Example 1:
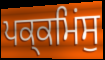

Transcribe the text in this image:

ਪਕ੍ਕਮਿਂਸੁ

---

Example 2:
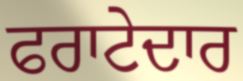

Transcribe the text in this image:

ਫਰਾਟੇਦਾਰ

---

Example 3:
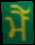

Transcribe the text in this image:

ਮੈੱ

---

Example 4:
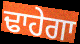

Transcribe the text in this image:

ਢਾਹੇਗਾ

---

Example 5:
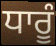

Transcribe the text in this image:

ਧਾਰੂੰ